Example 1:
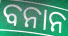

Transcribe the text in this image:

ବନାନ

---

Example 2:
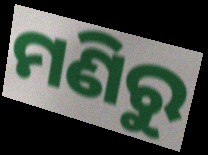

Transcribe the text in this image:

ମଣିରୁ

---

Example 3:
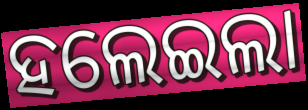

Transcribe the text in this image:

ହଲେଇଲା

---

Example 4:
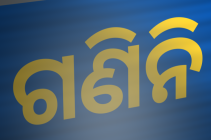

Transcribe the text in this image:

ଗଣିନି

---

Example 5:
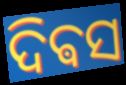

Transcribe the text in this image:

ଦିଵସ